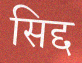
सिद्द